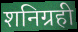
शनिग्रही